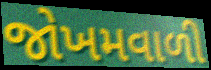
જોખમવાળી